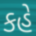
કહે